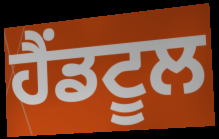
ਹੈਂਡਟੂਲ